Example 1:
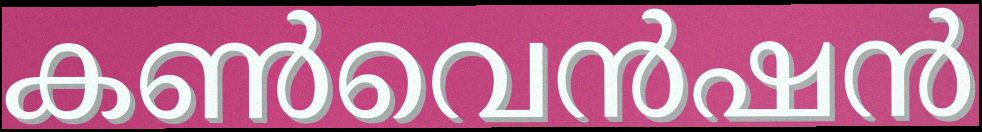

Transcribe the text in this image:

കൺവെൻഷൻ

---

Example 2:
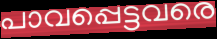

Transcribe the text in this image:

പാവപ്പെട്ടവരെ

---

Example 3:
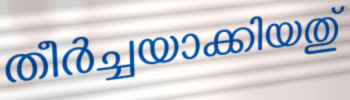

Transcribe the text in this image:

തീർച്ചയാക്കിയതു്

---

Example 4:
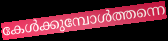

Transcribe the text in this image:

കേൾക്കുമ്പോൾത്തന്നെ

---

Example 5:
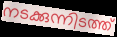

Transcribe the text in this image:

നടക്കുന്നിടത്ത്